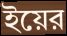
ইয়ের